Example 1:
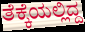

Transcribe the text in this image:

ತೆಕ್ಕೆಯಲ್ಲಿದ್ದ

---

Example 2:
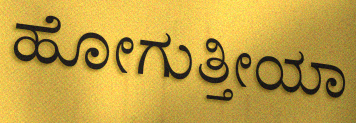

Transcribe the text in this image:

ಹೋಗುತ್ತೀಯಾ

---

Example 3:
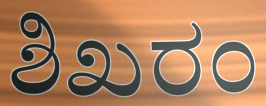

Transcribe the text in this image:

ಶಿಖರಂ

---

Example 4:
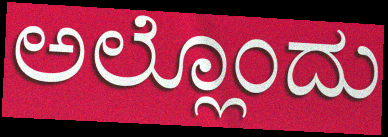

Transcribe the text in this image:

ಅಲ್ಲೊಂದು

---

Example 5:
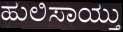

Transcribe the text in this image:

ಹುಲಿಸಾಯ್ತು